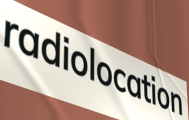
radiolocation